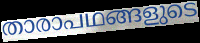
താരാപഥങ്ങളുടെ